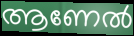
ആണേൽ